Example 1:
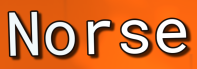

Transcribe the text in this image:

Norse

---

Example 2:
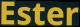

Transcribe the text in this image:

Ester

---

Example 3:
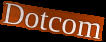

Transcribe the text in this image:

Dotcom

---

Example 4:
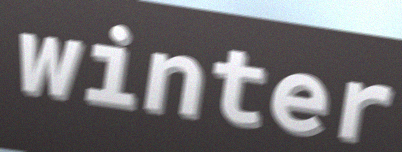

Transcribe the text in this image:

winter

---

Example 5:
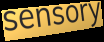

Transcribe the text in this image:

sensory